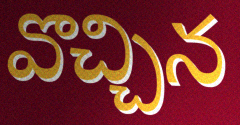
వొచ్చిన